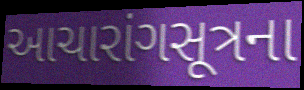
આચારાંગસૂત્રના